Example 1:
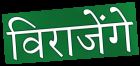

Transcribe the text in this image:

विराजेंगे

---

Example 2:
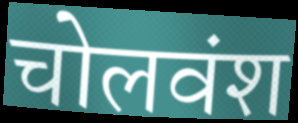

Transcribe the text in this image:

चोलवंश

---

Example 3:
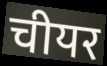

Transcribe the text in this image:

चीयर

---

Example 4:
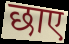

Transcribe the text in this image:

छाए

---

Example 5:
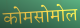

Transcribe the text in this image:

कोमसोमोल